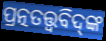
ପ୍ରତ୍ନତତ୍ତ୍ୱବିଦ୍‌ଙ୍କ